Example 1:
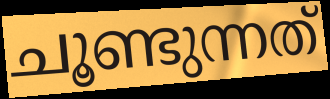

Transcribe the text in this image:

ചൂണ്ടുന്നത്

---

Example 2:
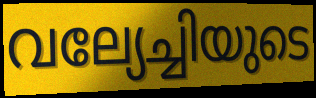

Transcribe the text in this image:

വല്യേച്ചിയുടെ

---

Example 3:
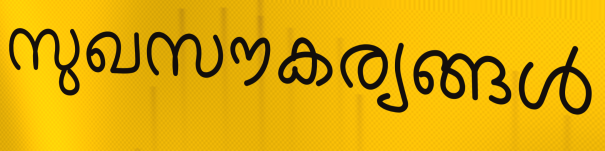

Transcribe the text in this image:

സുഖസൗകര്യങ്ങൾ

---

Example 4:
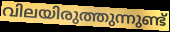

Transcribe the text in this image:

വിലയിരുത്തുന്നുണ്ട്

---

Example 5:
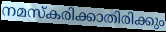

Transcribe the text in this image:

നമസ്കരിക്കാതിരിക്കും